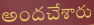
అందచేశారు